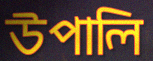
উপালি